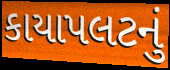
કાયાપલટનું